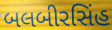
બલબીરસિંહ